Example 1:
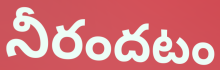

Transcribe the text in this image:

నీరందటం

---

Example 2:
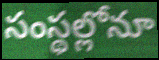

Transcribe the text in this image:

సంస్థల్లోనూ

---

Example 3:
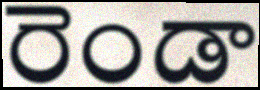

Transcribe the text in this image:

రెండా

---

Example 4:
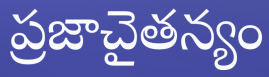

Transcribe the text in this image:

ప్రజాచైతన్యం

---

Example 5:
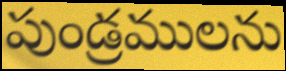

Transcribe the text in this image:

పుండ్రములను